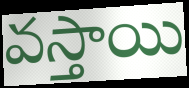
వస్తాయి